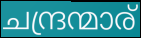
ചന്ദ്രന്മാര്